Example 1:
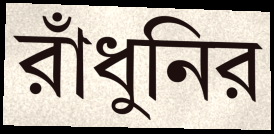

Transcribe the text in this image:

রাঁধুনির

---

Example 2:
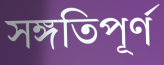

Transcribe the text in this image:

সঙ্গতিপূর্ণ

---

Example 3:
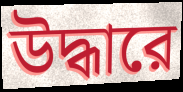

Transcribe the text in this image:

উদ্ধারে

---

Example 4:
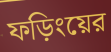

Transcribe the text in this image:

ফড়িংয়ের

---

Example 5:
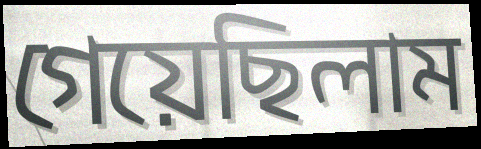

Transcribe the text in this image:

গেয়েছিলাম